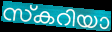
സ്‌കറിയാ